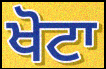
ਖੋਟਾ